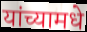
यांच्यामधे